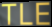
TLE